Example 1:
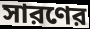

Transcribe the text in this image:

সারণের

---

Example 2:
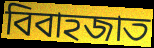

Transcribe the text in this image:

বিবাহজাত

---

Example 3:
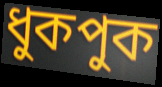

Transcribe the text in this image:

ধুকপুক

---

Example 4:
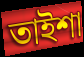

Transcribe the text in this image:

তাইশা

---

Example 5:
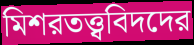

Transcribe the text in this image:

মিশরতত্ত্ববিদদের